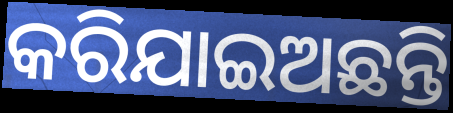
କରିଯାଇଅଛନ୍ତି